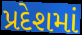
પ્રદેશમાં